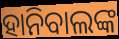
ହାନିବାଲଙ୍କ